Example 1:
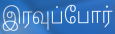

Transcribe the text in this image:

இரவுப்போர்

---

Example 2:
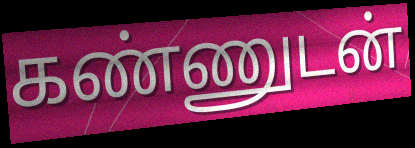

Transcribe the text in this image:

கண்ணுடன்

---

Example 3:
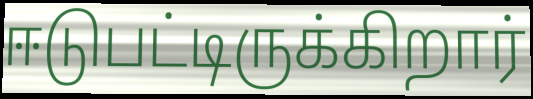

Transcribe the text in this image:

ஈடுபட்டிருக்கிறார்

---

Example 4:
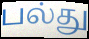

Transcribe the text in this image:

பல்து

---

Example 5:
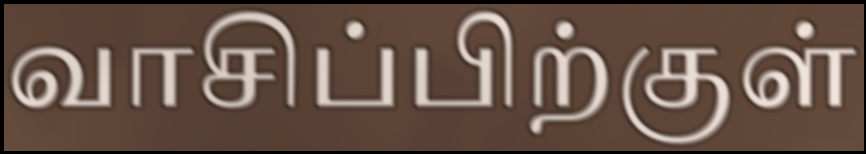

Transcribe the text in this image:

வாசிப்பிற்குள்